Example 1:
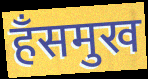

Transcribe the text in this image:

हँसमुख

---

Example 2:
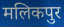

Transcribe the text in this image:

मलिकपुर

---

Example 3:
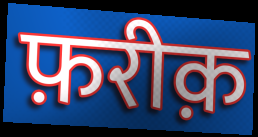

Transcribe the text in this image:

फ़रीक़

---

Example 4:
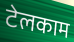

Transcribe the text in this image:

टेलकाम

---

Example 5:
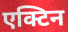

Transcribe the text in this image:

एक्टिन